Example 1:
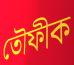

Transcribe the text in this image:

তৌফীক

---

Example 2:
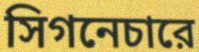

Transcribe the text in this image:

সিগনেচারে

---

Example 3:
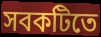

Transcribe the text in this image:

সবকটিতে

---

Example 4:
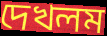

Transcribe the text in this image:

দেখলম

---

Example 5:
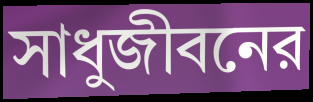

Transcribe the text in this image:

সাধুজীবনের